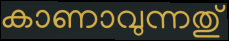
കാണാവുന്നതു്